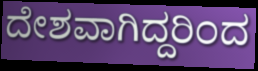
ದೇಶವಾಗಿದ್ದರಿಂದ